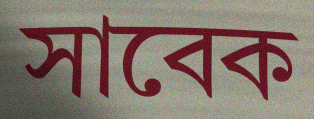
সাবেক